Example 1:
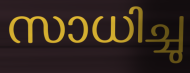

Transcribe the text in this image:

സാധിച്ചു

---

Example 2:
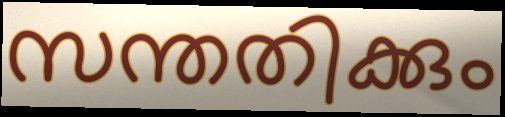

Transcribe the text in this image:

സന്തതിക്കും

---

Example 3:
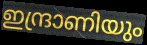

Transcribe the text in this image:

ഇന്ദ്രാണിയും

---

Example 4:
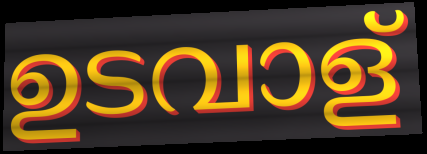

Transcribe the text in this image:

ഉടവാള്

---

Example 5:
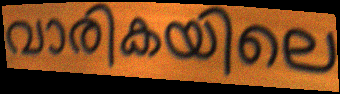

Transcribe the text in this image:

വാരികയിലെ